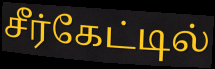
சீர்கேட்டில்